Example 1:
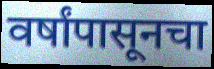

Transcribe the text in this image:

वर्षांपासूनचा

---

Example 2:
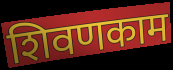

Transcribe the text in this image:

शिवणकाम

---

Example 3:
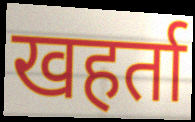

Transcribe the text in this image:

खहर्ता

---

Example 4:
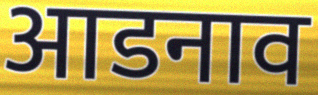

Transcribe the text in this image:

आडनाव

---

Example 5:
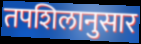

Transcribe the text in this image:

तपशिलानुसार